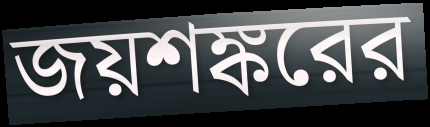
জয়শঙ্করের